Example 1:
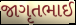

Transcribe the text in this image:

જાગૃતભાઈ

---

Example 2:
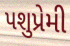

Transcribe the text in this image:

પશુપ્રેમી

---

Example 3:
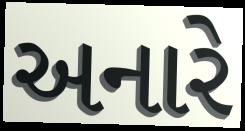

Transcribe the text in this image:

અનારે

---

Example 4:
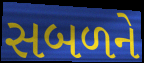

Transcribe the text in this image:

સબળને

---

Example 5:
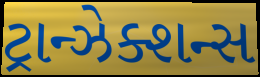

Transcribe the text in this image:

ટ્રાન્ઝેક્શન્સ